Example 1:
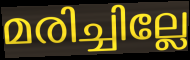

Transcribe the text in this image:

മരിച്ചില്ലേ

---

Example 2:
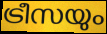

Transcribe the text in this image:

ട്രീസയും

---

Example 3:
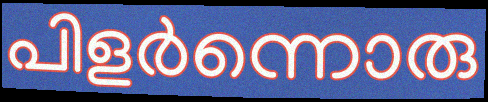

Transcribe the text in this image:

പിളർന്നൊരു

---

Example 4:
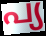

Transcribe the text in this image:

പ്യ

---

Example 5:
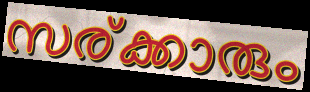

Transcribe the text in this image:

സര്ക്കാരും